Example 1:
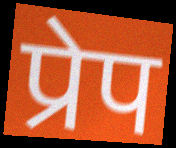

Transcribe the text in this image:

प्रेप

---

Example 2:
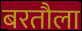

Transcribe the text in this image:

बरतौला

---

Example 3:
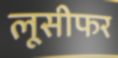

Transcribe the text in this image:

लूसीफर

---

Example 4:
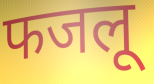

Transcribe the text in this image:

फजलू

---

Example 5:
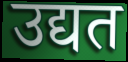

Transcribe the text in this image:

उद्यत